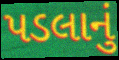
પડલાનું